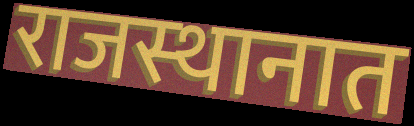
राजस्थानात